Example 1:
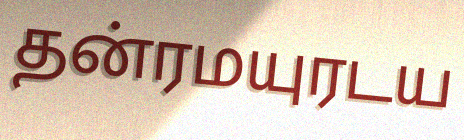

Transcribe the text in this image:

தன்ரமயுரடய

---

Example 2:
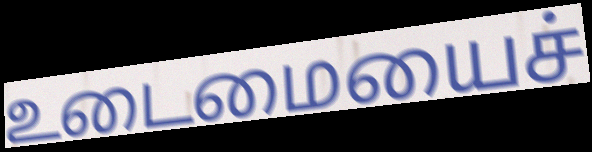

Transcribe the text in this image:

உடைமையைச்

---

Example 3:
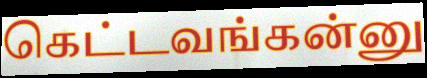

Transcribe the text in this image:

கெட்டவங்கன்னு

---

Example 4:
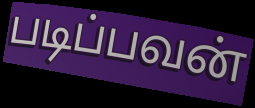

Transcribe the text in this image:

படிப்பவன்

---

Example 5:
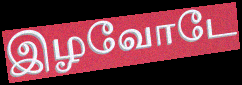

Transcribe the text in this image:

இழவோடே